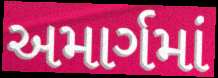
અમાર્ગમાં